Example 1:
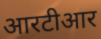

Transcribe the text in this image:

आरटीआर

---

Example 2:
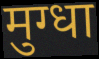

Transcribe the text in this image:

मुग्धा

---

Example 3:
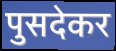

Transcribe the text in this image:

पुसदेकर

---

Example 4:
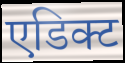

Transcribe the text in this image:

एडिक्ट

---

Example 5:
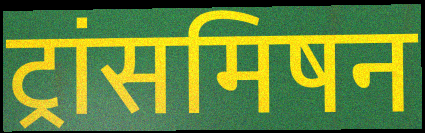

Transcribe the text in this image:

ट्रांसमिषन